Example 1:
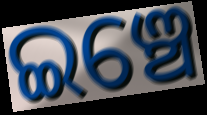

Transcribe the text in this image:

ଇଞ୍ଚେ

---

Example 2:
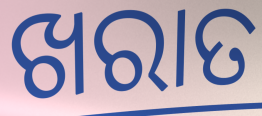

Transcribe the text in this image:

ଖରାତ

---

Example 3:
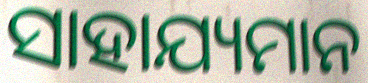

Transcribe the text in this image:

ସାହାଯ୍ୟମାନ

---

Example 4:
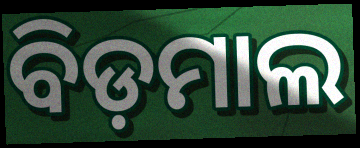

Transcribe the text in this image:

ବିଡ଼ମାଲ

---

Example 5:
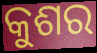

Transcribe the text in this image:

କୁଶର